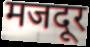
मजदूर